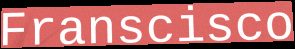
Franscisco